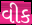
વીક